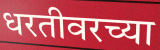
धरतीवरच्या